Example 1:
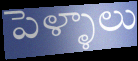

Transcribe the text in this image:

పెళ్ళాలు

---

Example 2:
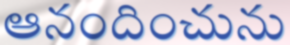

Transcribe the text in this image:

ఆనందించును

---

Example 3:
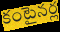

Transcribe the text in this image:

కంటైనర్ల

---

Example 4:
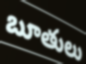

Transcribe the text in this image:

బూతులు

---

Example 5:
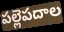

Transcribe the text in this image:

పల్లెపదాల